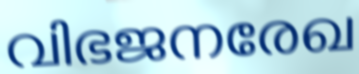
വിഭജനരേഖ